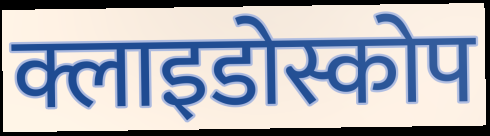
क्लाइडोस्कोप